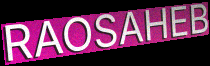
RAOSAHEB